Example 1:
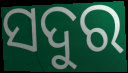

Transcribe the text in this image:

ସଦୁର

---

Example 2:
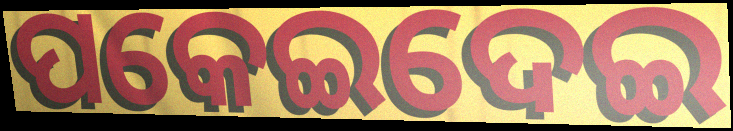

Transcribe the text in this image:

ପକେଇଦେଇ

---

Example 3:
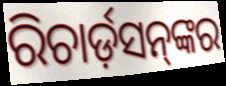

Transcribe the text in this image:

ରିଚାର୍ଡ଼ସନ୍‌ଙ୍କର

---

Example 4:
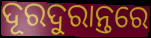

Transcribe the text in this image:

ଦୂରଦୁରାନ୍ତରେ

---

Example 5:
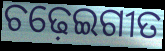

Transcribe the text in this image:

ଚଢ଼େଇଗୀତ